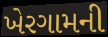
ખેરગામની